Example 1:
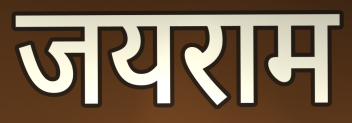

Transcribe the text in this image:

जयराम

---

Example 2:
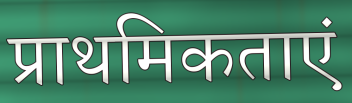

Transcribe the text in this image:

प्राथमिकताएं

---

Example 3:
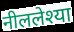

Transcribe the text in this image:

नीललेश्या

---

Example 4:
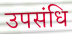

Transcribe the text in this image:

उपसंधि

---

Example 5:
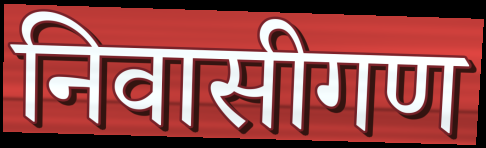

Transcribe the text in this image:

निवासीगण